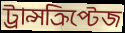
ট্রান্সক্রিপ্টেজ